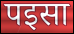
पइसा